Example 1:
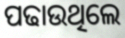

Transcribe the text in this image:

ପଢାଉଥିଲେ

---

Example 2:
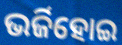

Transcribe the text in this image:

ଭର୍ଜିହୋଇ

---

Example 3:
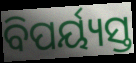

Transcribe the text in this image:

ବିପର୍ୟ୍ୟସ୍ତ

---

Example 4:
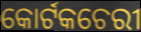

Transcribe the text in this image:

କୋର୍ଟକଚେରୀ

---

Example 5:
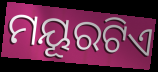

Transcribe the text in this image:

ମୟୂରଟିଏ